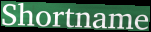
Shortname